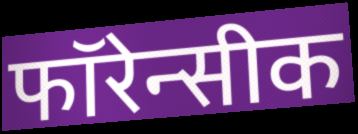
फॉरेन्सीक